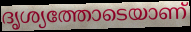
ദൃശ്യത്തോടെയാണ്